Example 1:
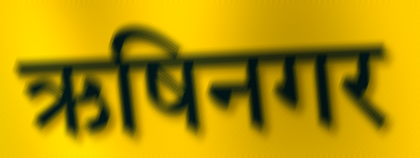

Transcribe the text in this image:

ऋषिनगर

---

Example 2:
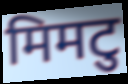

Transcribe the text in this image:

मिमटु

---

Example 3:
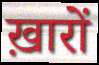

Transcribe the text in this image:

ख़ारों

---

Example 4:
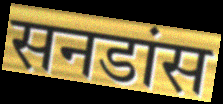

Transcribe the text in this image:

सनडांस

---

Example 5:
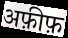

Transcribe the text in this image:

अफ़ीफ़